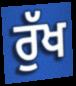
ਰੁੱਖ